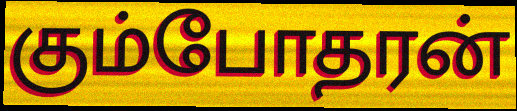
கும்போதரன்